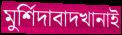
মুর্শিদাবাদখানাই